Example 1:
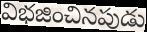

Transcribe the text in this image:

విభజించినపుడు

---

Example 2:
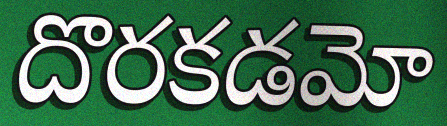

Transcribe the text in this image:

దొరకడమో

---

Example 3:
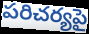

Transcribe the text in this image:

పరిచర్యపై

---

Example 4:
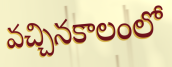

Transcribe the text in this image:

వచ్చినకాలంలో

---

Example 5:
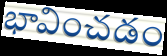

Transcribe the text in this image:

భావించడం